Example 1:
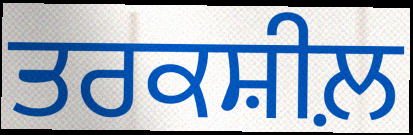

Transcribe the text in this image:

ਤਰਕਸ਼ੀਲ਼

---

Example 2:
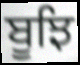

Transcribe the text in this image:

ਬੂਝਿ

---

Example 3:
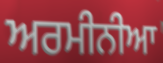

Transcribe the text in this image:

ਅਰਮੀਨੀਆ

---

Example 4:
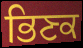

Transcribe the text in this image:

ਭਿਣਕ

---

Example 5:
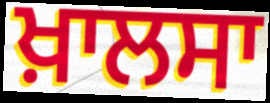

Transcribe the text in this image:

ਖ਼ਾਲਸਾ